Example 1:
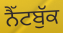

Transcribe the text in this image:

ਨੈੱਟਬੁੱਕ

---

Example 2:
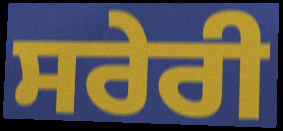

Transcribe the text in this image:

ਸਰੇਰੀ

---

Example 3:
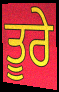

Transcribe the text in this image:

ਤੂਰੇ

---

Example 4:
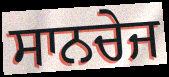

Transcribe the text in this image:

ਸਾਨਚੇਜ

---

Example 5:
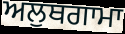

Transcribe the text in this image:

ਅਲੁਥਗਾਮਾ